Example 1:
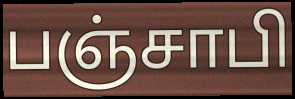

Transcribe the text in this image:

பஞ்சாபி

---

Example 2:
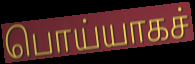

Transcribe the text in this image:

பொய்யாகச்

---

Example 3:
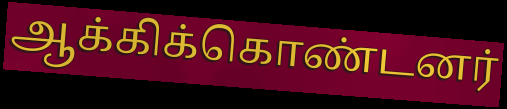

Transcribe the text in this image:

ஆக்கிக்கொண்டனர்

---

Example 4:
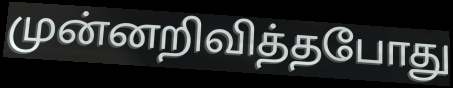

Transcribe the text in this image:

முன்னறிவித்தபோது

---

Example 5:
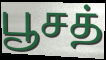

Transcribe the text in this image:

பூசத்